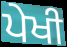
ਪੇਖੀ